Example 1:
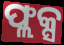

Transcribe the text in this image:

ଫ୍ଲକ୍ସ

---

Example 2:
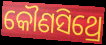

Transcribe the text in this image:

କୌଣସିଥ୍ରେ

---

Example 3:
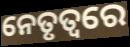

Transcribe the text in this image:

ନେତୃତ୍ଵରେ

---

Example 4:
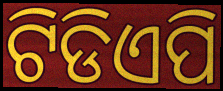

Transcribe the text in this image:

ଟିଡିଏପି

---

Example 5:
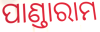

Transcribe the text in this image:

ପାଣ୍ଡାରାମ